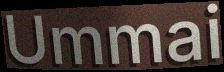
Ummai